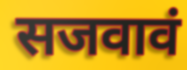
सजवावं